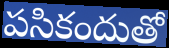
పసికందుతో